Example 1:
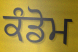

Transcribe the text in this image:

ਕੰਡੋਮ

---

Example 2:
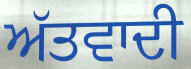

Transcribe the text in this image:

ਅੱਤਵਾਦੀ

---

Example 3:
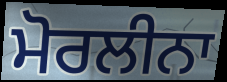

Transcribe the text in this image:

ਮੋਰਲੀਨਾ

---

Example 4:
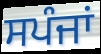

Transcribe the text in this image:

ਸਪੰਜਾਂ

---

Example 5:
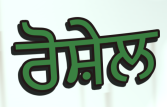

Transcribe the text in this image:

ਰੋਸ਼ੇਲ